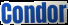
Condor